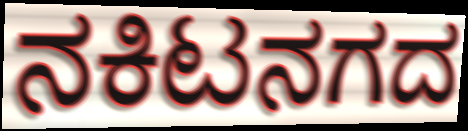
ನಕಿಟನಗದ